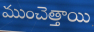
ముంచెత్తాయి